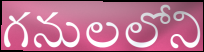
గనులలోని